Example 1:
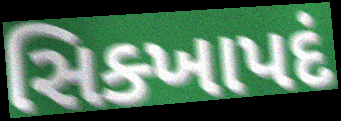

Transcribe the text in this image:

સિક્ખાપદં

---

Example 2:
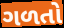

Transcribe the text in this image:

ગળતો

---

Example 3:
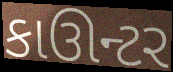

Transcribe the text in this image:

કાઊન્ટર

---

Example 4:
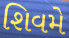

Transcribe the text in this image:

શિવમે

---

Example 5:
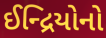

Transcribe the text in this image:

ઈન્દ્રિયોનો